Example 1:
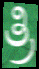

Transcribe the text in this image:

ತ್ರಿ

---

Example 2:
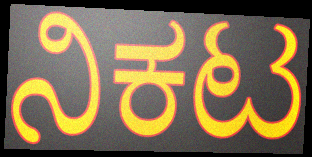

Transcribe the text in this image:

ನಿಕಟ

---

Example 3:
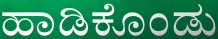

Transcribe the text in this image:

ಹಾಡಿಕೊಂಡು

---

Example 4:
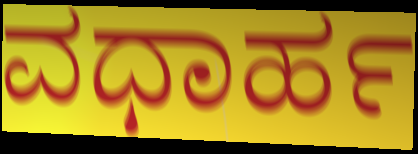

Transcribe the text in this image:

ವಧಾರ್ಹ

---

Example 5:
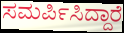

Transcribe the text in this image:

ಸಮರ್ಪಿಸಿದ್ದಾರೆ